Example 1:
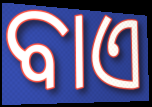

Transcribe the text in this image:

ବାଏ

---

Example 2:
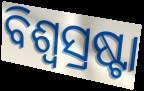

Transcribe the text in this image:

ବିଶ୍ୱସ୍ରଷ୍ଟା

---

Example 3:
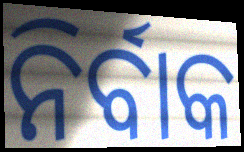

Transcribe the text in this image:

ନିର୍ବାକ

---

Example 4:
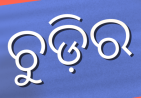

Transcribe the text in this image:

ଚୁଡ଼ିର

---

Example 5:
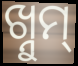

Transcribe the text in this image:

ଖ୍ନୁମ୍